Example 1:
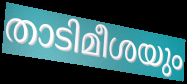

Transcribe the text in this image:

താടിമീശയും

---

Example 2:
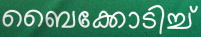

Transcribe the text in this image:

ബൈക്കോടിച്ച്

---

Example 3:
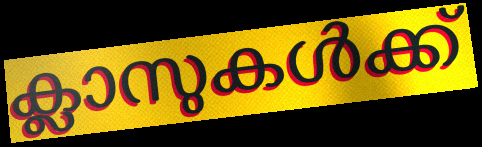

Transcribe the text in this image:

ക്ലാസുകൾക്ക്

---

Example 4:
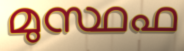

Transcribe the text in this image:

മുസ്ഥഫ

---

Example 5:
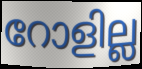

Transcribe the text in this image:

റോളില്ല